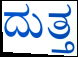
ದುತ್ತ